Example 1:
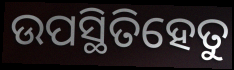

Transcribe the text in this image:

ଉପସ୍ଥିତିହେତୁ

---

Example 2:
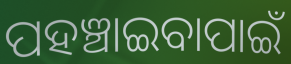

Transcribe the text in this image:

ପହଞ୍ଚାଇବାପାଇଁ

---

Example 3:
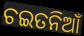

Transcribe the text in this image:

ଚଇତନିଆଁ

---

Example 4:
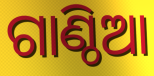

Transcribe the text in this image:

ଗାଣ୍ଠିଆ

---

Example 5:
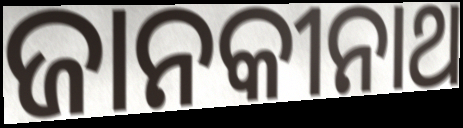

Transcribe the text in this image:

ଜାନକୀନାଥ